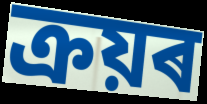
ক্ৰয়ৰ